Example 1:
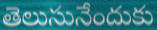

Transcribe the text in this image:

తెలుసునేందుకు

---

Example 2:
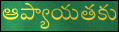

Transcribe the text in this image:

ఆప్యాయతకు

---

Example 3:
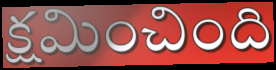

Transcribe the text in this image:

క్షమించింది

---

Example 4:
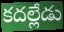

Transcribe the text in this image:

కదల్లేడు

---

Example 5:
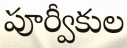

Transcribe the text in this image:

పూర్వీకుల